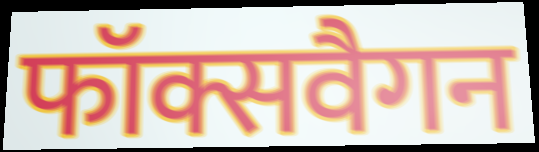
फॉक्सवैगन